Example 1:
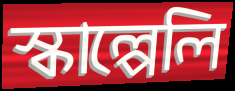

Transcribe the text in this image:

স্কাল্পেলি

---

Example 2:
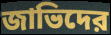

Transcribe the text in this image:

জাভিদের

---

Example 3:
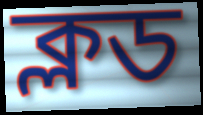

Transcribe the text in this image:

ক্লড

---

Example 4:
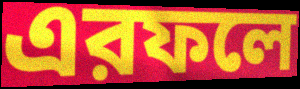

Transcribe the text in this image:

এরফলে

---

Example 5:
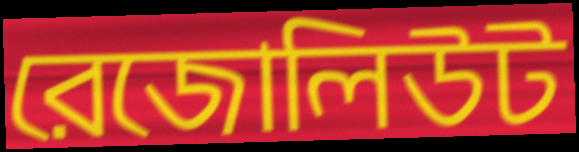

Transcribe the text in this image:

রেজোলিউট